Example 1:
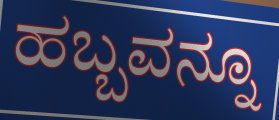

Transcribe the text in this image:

ಹಬ್ಬವನ್ನೂ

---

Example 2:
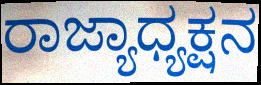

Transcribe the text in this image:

ರಾಜ್ಯಾಧ್ಯಕ್ಷನ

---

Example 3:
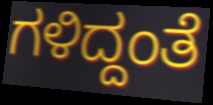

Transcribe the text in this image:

ಗಳಿದ್ದಂತೆ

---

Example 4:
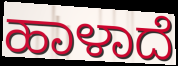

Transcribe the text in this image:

ಹಾಳಾದೆ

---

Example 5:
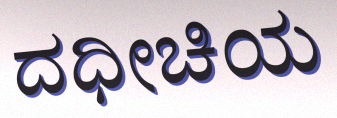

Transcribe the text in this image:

ದಧೀಚಿಯ